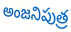
అంజనిపుత్ర